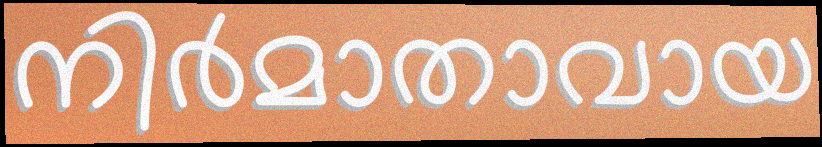
നിർമാതാവായ